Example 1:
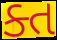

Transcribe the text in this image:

ક્ત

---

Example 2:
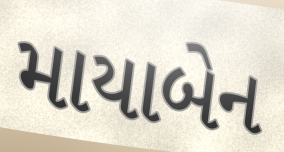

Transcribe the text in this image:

માયાબેન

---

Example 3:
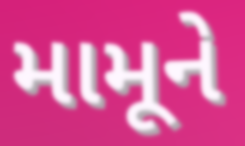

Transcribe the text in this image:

મામૂને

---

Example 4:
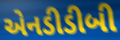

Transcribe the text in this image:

એનડીડીબી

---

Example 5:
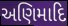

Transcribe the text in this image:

અણિમાદિ